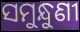
ସମୁନ୍ଧୁଣୀ